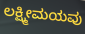
ಲಕ್ಷ್ಮೀಮಯವು